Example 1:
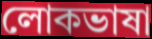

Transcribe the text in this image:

লোকভাষা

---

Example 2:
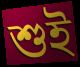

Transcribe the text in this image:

শুই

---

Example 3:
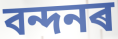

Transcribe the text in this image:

বন্দনৰ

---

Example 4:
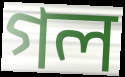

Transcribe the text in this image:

গল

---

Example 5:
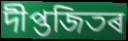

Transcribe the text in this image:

দীপ্তজিতৰ